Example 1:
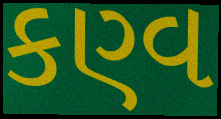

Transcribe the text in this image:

કણ્વ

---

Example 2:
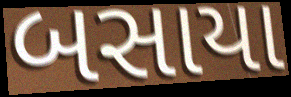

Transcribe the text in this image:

બસાયા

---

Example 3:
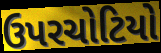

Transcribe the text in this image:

ઉપરચોટિયો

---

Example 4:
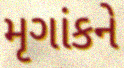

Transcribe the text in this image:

મૃગાંકને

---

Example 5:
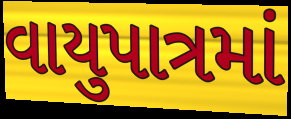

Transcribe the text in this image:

વાયુપાત્રમાં